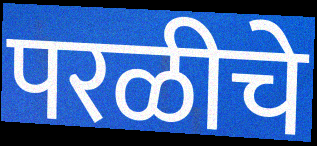
परळीचे